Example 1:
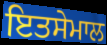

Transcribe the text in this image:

ਇਤਸੇਮਾਲ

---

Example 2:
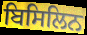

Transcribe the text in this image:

ਬਿਸਿਲਿਨ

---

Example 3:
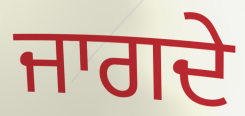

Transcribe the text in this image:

ਜਾਗਦੇ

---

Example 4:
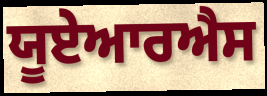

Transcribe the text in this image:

ਯੂਏਆਰਐਸ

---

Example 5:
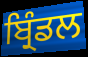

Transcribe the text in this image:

ਬ੍ਰਿੰਡਲ